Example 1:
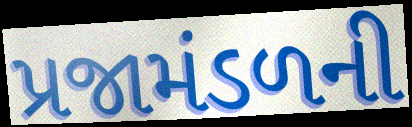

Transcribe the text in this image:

પ્રજામંડળની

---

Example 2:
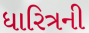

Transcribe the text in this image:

ધારિત્રની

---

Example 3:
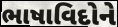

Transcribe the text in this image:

ભાષાવિદોને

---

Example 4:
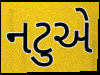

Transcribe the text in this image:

નટુએ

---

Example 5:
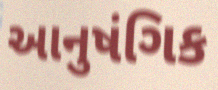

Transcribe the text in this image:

આનુષંગિક